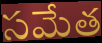
సమేత